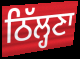
ਠਿੱਲ੍ਹਣਾ